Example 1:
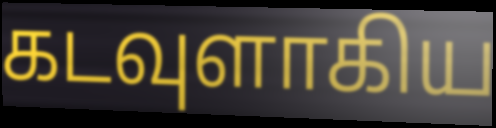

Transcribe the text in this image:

கடவுளாகிய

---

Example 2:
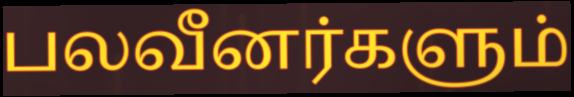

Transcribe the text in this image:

பலவீனர்களும்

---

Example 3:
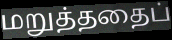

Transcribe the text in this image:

மறுத்ததைப்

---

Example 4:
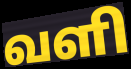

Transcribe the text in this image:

வளி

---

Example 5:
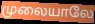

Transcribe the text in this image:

முலையாலே